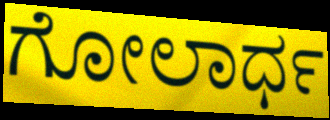
ಗೋಲಾರ್ಧ